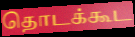
தொடக்கூட